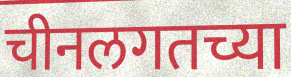
चीनलगतच्या